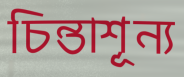
চিন্তাশূন্য